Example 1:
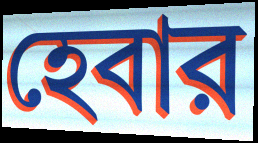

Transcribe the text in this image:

হেবার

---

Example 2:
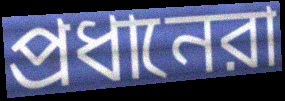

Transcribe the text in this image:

প্রধানেরা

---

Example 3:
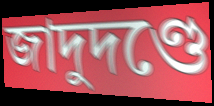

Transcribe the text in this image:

জাদুদণ্ডে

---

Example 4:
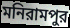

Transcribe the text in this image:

মনিরামপুর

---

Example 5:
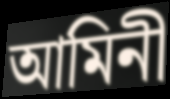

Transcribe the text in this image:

আমিনী